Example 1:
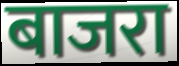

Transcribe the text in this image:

बाजरा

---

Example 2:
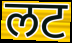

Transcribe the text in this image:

लट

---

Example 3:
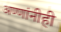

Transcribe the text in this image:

अण्णांनीही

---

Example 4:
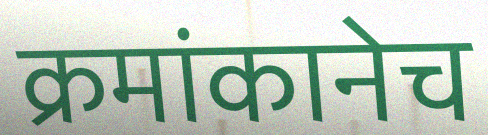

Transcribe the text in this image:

क्रमांकानेच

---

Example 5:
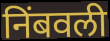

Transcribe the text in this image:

निंबवली